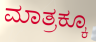
ಮಾತ್ರಕ್ಕೂ